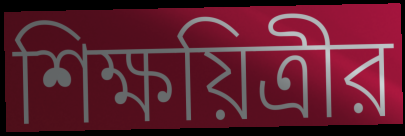
শিক্ষয়িত্রীর